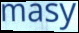
masy